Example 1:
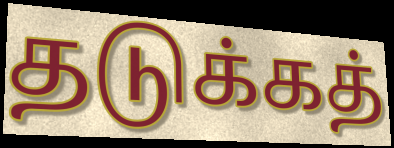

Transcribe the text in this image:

தடுக்கத்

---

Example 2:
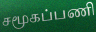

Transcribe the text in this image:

சமூகப்பணி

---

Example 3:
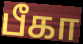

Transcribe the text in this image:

பீகா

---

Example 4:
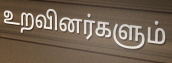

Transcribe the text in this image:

உறவினர்களும்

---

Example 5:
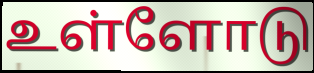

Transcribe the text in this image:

உள்ளோடு